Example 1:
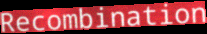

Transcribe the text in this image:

Recombination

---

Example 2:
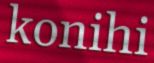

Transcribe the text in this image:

konihi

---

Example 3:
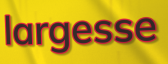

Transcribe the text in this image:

largesse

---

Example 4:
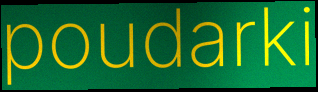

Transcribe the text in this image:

poudarki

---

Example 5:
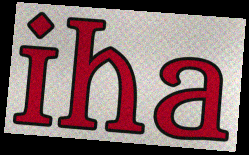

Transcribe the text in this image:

iha